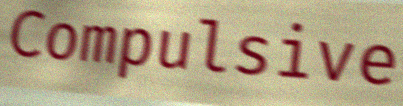
Compulsive